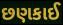
છણકાઈ